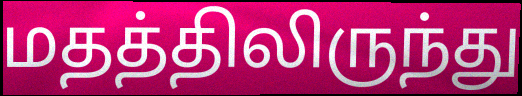
மதத்திலிருந்து